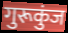
गुरूकुंज